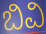
ಬಿವಿ